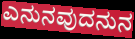
ಎನುನವುದನುನ